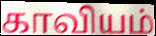
காவியம்